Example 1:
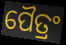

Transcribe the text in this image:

ପୈତ୍ରଂ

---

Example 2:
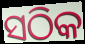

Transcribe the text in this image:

ସଠିକ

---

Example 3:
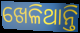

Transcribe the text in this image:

ଖେଳିଥାନ୍ତି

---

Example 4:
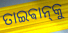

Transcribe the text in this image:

ତାଇଵାନ୍‌କୁ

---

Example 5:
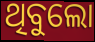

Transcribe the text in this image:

ଥିବୁଲୋ